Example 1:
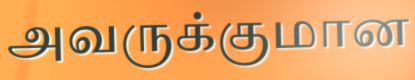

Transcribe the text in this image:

அவருக்குமான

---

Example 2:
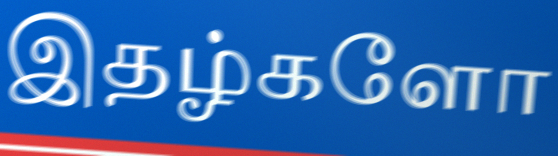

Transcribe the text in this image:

இதழ்களோ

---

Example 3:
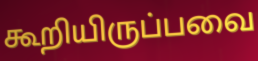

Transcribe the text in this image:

கூறியிருப்பவை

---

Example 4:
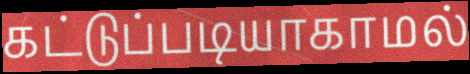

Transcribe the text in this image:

கட்டுப்படியாகாமல்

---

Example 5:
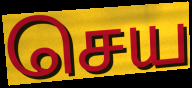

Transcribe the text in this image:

செய